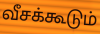
வீசக்கூடும்